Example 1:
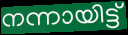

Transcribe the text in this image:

നന്നായിട്ട്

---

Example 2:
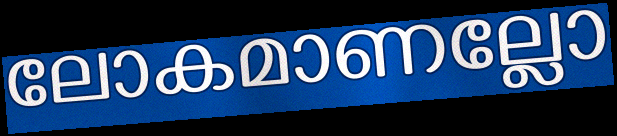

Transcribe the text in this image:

ലോകമാണല്ലോ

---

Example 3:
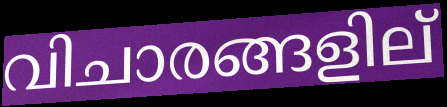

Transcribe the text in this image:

വിചാരങ്ങളില്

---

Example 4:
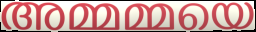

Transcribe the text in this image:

അമ്മമ്മയെ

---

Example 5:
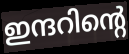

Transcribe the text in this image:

ഇന്ദറിന്റെ